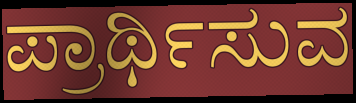
ಪ್ರಾರ್ಥಿಸುವ